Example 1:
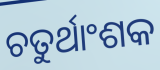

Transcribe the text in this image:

ଚତୁର୍ଥାଂଶକ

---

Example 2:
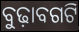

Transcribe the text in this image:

ବୁଢ଼ାବଗଟି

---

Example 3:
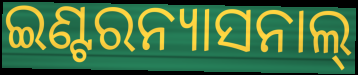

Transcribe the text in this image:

ଇଣ୍ଟରନ୍ୟାସନାଲ୍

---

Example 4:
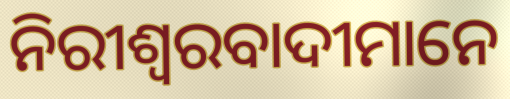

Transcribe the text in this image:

ନିରୀଶ୍ବରବାଦୀମାନେ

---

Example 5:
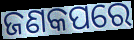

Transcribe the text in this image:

ଜଣକପରେ